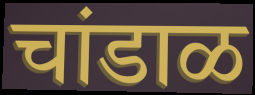
चांडाळ